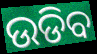
ଉଡିବ